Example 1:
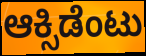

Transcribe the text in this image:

ಆಕ್ಸಿಡೆಂಟು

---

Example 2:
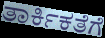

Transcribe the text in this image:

ತಾರ್ಕಿಕತೆಗೆ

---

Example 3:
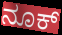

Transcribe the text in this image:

ನೂಕ್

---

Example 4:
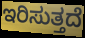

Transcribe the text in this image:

ಇರಿಸುತ್ತದೆ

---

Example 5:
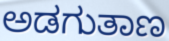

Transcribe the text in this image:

ಅಡಗುತಾಣ